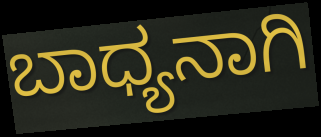
ಬಾಧ್ಯನಾಗಿ